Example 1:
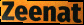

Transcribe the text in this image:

Zeenat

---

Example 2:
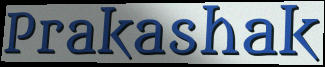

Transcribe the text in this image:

Prakashak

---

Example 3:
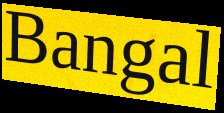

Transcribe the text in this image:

Bangal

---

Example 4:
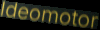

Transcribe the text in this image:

Ideomotor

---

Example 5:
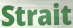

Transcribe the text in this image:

Strait